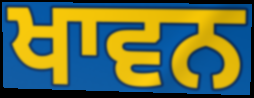
ਖਾਵਨ